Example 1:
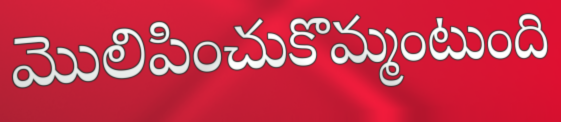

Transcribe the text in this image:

మొలిపించుకొమ్మంటుంది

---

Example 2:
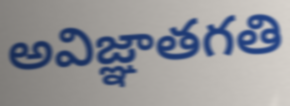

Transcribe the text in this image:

అవిజ్ఞాతగతి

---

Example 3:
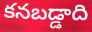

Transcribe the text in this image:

కనబడ్డాది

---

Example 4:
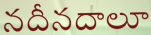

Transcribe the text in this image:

నదీనదాలూ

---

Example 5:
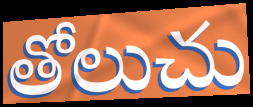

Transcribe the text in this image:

తోలుచు